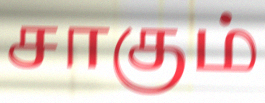
சாகும்